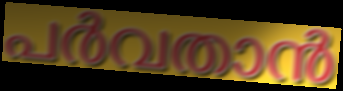
പർവതാൻ